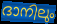
ദാനിലും